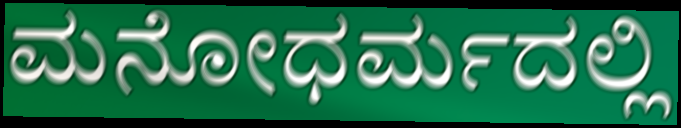
ಮನೋಧರ್ಮದಲ್ಲಿ